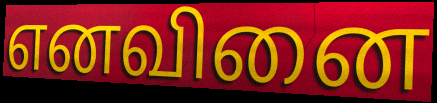
எனவினை